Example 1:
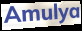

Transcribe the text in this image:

Amulya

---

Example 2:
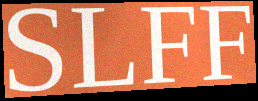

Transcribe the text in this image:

SLFF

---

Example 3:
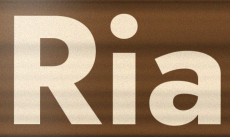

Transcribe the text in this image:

Ria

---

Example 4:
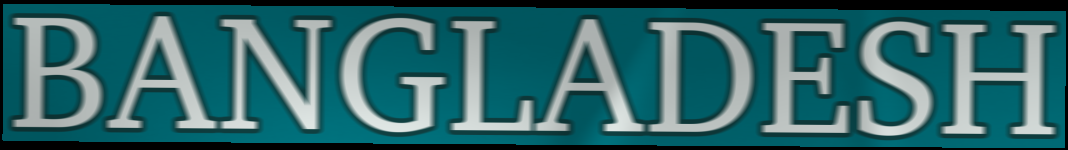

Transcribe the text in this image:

BANGLADESH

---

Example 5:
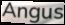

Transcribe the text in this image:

Angus